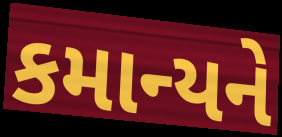
કમાન્યને